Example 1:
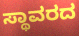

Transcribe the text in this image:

ಸ್ಥಾವರದ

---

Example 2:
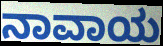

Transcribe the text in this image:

ನಾವಾಯ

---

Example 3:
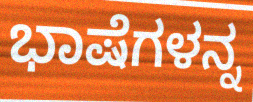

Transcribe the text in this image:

ಭಾಷೆಗಳನ್ನ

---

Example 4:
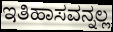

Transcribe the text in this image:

ಇತಿಹಾಸವನ್ನಲ್ಲ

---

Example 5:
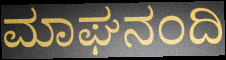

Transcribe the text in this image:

ಮಾಘನಂದಿ